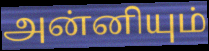
அன்னியும்